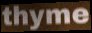
thyme